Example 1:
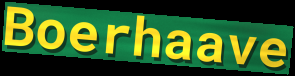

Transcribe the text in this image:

Boerhaave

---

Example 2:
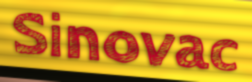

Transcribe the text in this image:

Sinovac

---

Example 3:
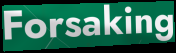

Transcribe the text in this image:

Forsaking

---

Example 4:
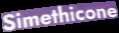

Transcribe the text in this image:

Simethicone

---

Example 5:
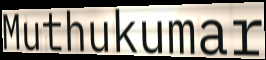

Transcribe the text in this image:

Muthukumar